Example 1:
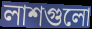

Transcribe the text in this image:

লাশগুলো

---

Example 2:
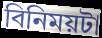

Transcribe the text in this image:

বিনিময়টা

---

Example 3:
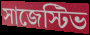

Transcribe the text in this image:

সাজেস্টিভ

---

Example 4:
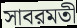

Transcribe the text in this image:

সাবরমতী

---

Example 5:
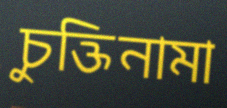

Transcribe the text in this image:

চুক্তিনামা